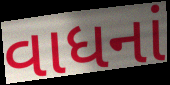
વાધનાં